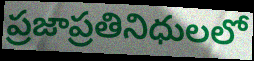
ప్రజాప్రతినిధులలో